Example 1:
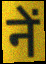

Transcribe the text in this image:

नें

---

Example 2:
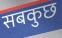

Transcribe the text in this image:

सबकुछ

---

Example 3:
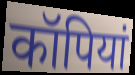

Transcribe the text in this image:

कॉपियां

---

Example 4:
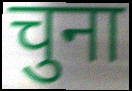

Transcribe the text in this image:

चुना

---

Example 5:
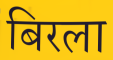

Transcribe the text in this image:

बिरला